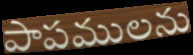
పాపములను